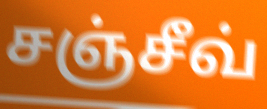
சஞ்சீவ்